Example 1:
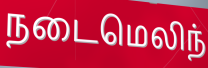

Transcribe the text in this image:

நடைமெலிந்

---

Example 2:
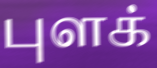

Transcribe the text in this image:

புளக்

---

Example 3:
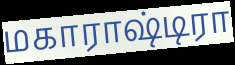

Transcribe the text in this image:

மகாராஷ்டிரா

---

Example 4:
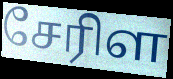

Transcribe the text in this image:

சேரிள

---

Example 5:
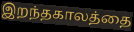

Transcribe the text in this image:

இறந்தகாலத்தை